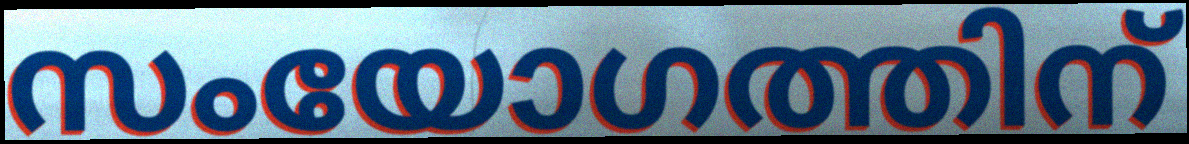
സംയോഗത്തിന്